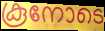
കൂനോടെ